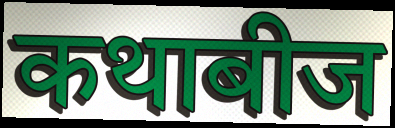
कथाबीज